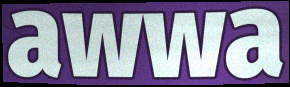
awwa